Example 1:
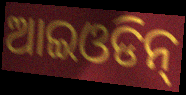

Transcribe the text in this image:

ଆଇଓଡିନ୍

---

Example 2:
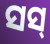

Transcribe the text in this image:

ସସ୍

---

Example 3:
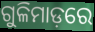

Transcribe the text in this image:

ଗୁଳିମାଡ଼ରେ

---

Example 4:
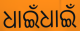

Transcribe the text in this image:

ଧାଇଁଧାଇଁ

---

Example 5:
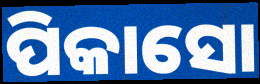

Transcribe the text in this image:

ପିକାସୋ